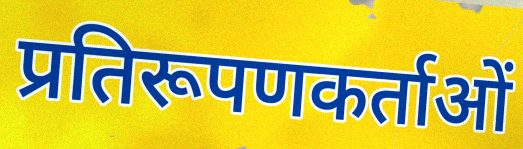
प्रतिरूपणकर्ताओं